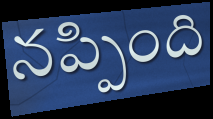
నప్పింది